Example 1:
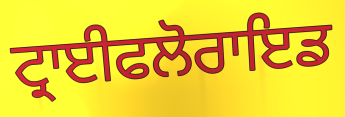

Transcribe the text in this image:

ਟ੍ਰਾਈਫਲੋਰਾਇਡ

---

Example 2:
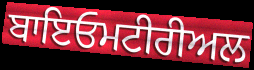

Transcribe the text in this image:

ਬਾਇਓਮਟੀਰੀਅਲ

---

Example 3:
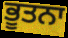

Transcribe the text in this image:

ਭੂਤਨਾ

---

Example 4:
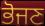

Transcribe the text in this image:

ਭੋਜਣ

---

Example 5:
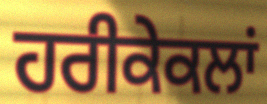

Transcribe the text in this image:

ਹਰੀਕੇਕਲਾਂ